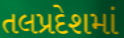
તલપ્રદેશમાં